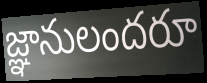
జ్ఞానులందరూ